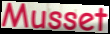
Musset